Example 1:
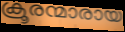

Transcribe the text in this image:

ക്രൂരന്മാരായ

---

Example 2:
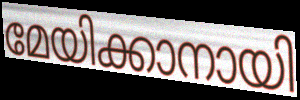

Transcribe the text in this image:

മേയിക്കാനായി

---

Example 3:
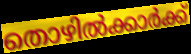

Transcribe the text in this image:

തൊഴിൽക്കാർക്ക്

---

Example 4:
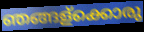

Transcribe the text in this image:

ഞങ്ങള്ക്കൊരു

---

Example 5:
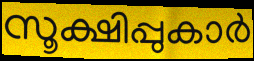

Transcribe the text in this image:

സൂക്ഷിപ്പുകാർ